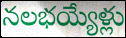
నలభయ్యేళ్లు